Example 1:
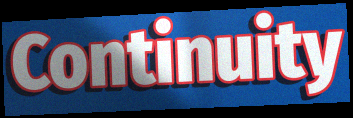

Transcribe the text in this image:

Continuity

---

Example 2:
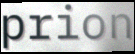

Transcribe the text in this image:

prion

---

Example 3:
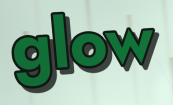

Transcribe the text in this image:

glow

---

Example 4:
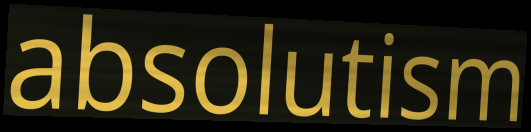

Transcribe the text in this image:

absolutism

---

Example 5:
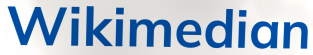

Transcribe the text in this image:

Wikimedian